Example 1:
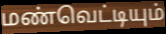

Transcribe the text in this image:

மண்வெட்டியும்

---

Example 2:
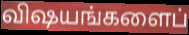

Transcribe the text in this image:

விஷயங்களைப்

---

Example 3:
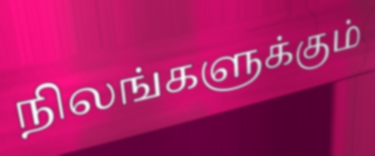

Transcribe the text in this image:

நிலங்களுக்கும்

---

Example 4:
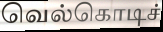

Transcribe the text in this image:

வெல்கொடிச்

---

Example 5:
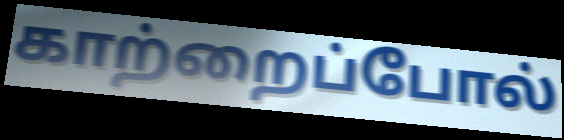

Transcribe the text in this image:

காற்றைப்போல்